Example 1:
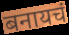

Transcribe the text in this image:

बनायचं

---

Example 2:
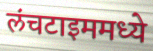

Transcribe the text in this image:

लंचटाइममध्ये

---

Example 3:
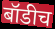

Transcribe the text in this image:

बॉडीच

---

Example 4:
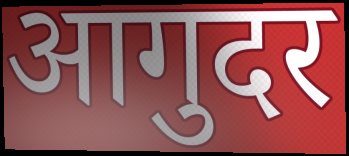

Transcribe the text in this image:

आगुदर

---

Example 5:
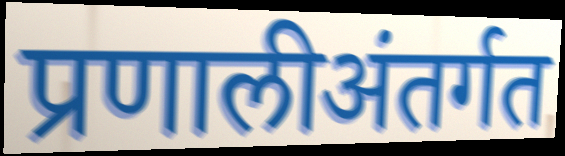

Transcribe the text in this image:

प्रणालीअंतर्गत